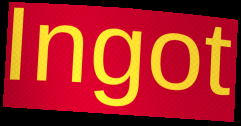
Ingot